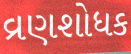
વ્રણશોધક